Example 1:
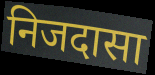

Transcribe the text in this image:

निजदासा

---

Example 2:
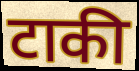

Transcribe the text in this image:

टाकी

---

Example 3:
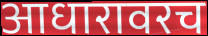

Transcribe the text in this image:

आधारावरच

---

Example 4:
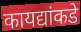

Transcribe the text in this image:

कायद्यांकडे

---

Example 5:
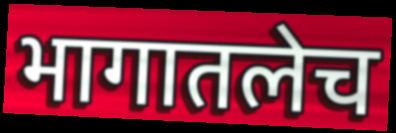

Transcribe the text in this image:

भागातलेच